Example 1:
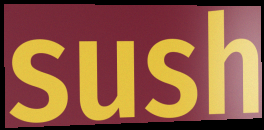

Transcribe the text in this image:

sush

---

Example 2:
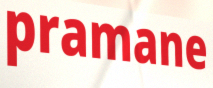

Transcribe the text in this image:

pramane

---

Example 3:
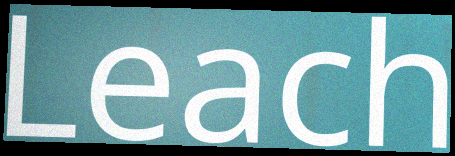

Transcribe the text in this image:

Leach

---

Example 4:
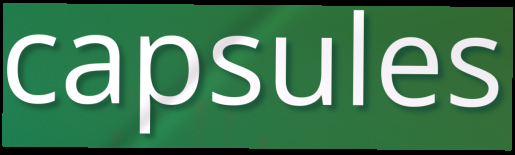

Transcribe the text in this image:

capsules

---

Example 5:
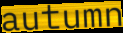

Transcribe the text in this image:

autumn